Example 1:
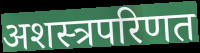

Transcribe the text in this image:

अशस्त्रपरिणत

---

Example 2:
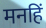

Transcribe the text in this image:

मनहिं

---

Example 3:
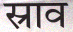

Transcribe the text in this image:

स्राव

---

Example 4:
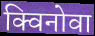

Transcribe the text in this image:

क्विनोवा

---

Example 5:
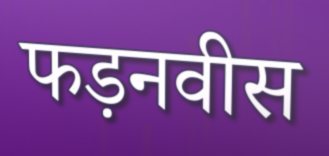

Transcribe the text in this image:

फड़नवीस